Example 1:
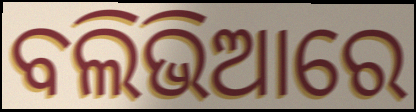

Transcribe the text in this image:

ବଲିଭିଆରେ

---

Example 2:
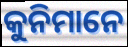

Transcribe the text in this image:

କୁନିମାନେ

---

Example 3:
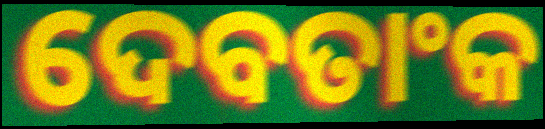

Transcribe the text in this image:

ଦେବତାଂକ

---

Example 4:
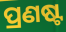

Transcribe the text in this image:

ପ୍ରଣଷ୍ଟ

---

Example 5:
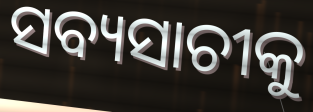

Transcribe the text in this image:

ସବ୍ୟସାଚୀକୁ